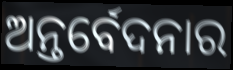
ଅନ୍ତର୍ବେଦନାର